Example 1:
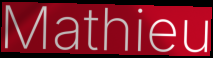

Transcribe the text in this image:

Mathieu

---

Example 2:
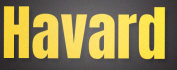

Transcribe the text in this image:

Havard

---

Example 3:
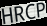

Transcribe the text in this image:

HRCP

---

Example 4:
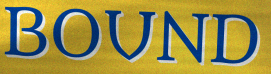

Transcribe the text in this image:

BOUND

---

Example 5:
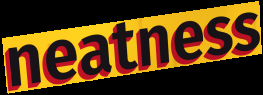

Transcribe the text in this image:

neatness